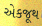
એકજૂથ